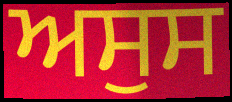
ਅਸੁਸ